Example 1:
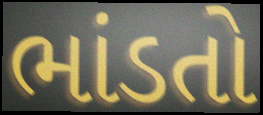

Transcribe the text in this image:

ભાંડતો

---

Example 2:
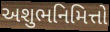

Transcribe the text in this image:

અશુભનિમિત્તો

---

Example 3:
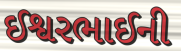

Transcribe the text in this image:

ઈશ્વરભાઈની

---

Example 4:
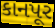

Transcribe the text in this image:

કાનપૂર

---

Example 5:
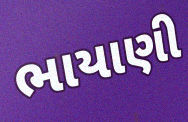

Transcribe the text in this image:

ભાયાણી